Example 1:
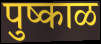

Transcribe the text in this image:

पुष्काळ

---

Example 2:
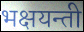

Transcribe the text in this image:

भक्षयन्ती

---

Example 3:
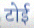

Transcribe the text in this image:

टोई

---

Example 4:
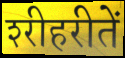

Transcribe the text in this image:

श्रीहरीतें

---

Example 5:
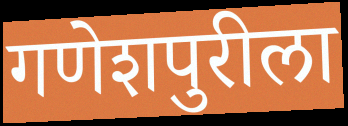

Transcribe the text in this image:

गणेशपुरीला